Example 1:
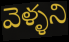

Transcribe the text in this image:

వెళ్ళని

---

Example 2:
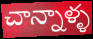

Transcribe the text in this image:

చాన్నాళ్ళ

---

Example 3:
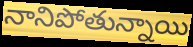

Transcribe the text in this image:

నానిపోతున్నాయి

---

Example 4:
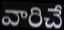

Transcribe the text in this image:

వారిచే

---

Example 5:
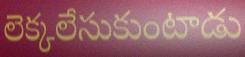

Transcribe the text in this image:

లెక్కలేసుకుంటాడు